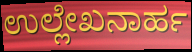
ಉಲ್ಲೇಖನಾರ್ಹ